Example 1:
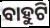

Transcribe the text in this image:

ବାହୁଟି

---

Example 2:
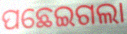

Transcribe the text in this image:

ପଛେଇଗଲା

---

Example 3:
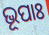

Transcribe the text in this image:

ଭୂପାଃ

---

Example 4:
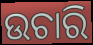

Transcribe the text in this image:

ଉଚାରି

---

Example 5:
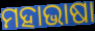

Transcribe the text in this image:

ମହାଭାଷା